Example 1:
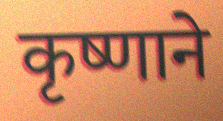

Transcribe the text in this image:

कृष्णाने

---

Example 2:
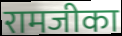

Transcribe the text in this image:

रामजीका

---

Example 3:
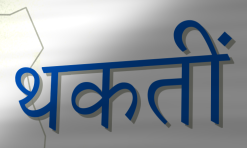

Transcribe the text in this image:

थकतीं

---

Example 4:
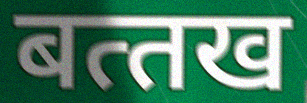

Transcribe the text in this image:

बत्‍तख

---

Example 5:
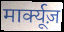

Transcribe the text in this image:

मार्क्यूज़